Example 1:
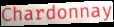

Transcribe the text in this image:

Chardonnay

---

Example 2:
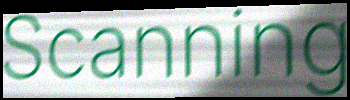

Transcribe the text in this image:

Scanning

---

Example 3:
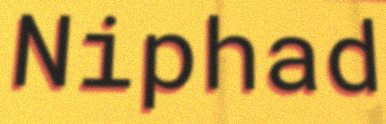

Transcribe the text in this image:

Niphad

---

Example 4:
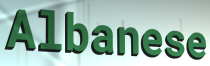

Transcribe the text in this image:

Albanese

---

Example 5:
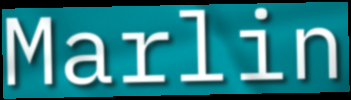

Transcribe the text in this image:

Marlin